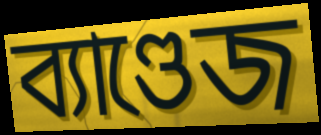
ব্যাণ্ডেজ